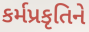
કર્મપ્રકૃતિને